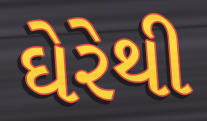
ઘેરેથી